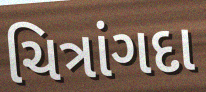
ચિત્રાંગદા